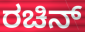
ರಚಿನ್